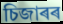
চিজাৰৰ